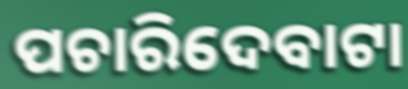
ପଚାରିଦେବାଟା